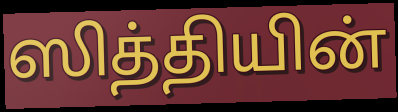
ஸித்தியின்